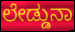
ಲೇಡ್ಡುನಾ